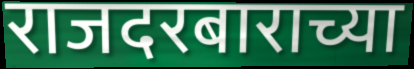
राजदरबाराच्या